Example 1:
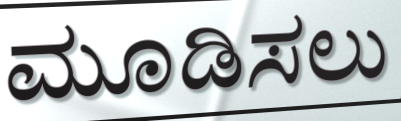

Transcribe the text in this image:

ಮೂಡಿಸಲು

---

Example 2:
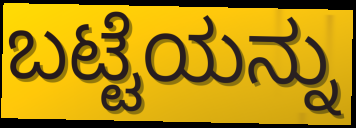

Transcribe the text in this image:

ಬಟ್ಟೆಯನ್ನು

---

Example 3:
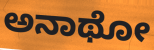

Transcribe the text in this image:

ಅನಾಥೋ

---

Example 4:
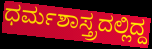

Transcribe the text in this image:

ಧರ್ಮಶಾಸ್ತ್ರದಲ್ಲಿದ್ದ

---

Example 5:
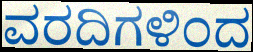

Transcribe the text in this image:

ವರದಿಗಳಿಂದ